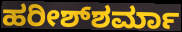
ಹರೀಶ್‌ಶರ್ಮಾ